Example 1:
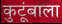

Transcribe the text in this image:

कुटूंबाला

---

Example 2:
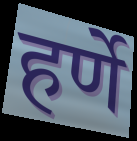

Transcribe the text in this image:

हर्णे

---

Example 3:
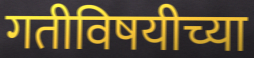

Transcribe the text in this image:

गतीविषयीच्या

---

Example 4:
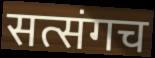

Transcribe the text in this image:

सत्संगच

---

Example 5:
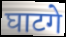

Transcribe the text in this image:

घाटगे